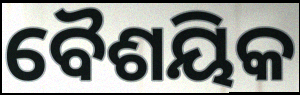
ବୈଶୟିକ